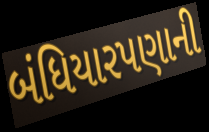
બંધિયારપણાની